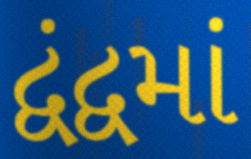
દ્વંદ્વમાં